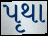
પૃથા